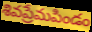
శివప్రేమపిండం